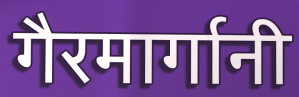
गैरमार्गानी